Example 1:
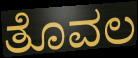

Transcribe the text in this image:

ತೊವಲ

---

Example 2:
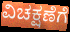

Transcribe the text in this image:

ವಿಚಕ್ಷಣೆಗೆ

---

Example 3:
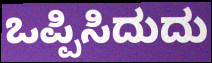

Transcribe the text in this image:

ಒಪ್ಪಿಸಿದುದು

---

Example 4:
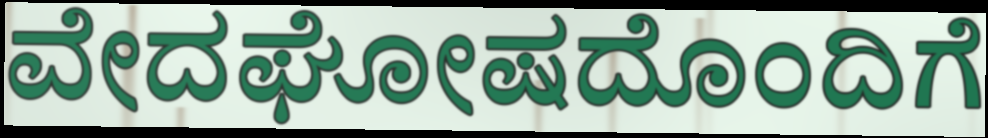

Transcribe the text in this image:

ವೇದಘೋಷದೊಂದಿಗೆ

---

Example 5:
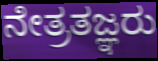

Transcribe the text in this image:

ನೇತ್ರತಜ್ಞರು